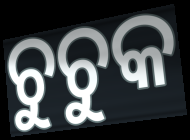
ଚୁଚୁକ